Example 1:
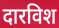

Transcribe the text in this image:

दारविश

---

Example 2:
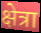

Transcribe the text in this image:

क्षेत्रा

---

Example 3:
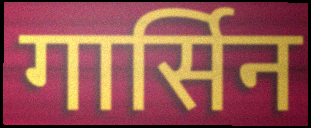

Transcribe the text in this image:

गार्सिन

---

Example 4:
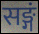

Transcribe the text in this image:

सङ्गं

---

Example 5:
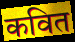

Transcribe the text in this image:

कवित